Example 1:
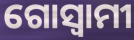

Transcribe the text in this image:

ଗୋସ୍ଵାମୀ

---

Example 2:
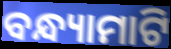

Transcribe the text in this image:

ବନ୍ଧ୍ୟାମାଟି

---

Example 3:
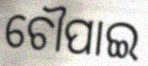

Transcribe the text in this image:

ଚୌପାଇ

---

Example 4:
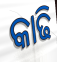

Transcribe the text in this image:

କାଢି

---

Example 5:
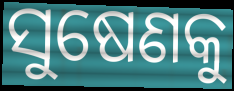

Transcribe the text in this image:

ସୁଷେଣକୁ